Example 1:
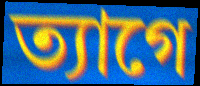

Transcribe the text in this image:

ত্যাগে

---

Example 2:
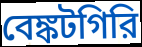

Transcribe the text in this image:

বেঙ্কটগিরি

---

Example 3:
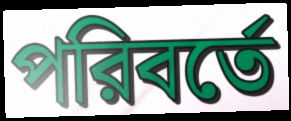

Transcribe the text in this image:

পরিবর্তে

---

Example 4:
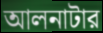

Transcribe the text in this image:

আলনাটার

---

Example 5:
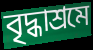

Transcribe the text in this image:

বৃদ্ধাশ্রমে